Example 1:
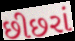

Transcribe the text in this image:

છીછરાં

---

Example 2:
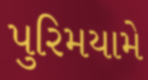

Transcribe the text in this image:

પુરિમયામે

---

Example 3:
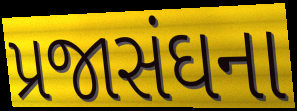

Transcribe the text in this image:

પ્રજાસંઘના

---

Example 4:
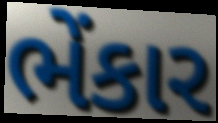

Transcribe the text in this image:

ભેંકાર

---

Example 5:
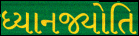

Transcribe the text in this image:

ધ્યાનજ્યોતિ